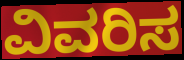
ವಿವರಿಸ